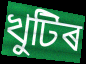
খুটিৰ